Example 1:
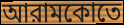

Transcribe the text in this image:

আরামকোতে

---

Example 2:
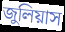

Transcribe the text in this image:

জুলিয়াস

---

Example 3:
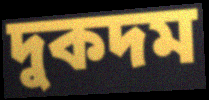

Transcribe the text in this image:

দুকদম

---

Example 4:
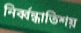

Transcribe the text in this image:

নির্ব্বন্ধাতিশয়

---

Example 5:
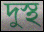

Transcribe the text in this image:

দুস্থ